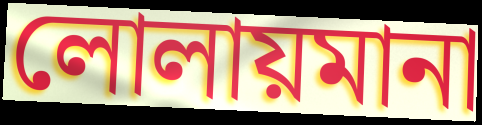
লোলায়মানা